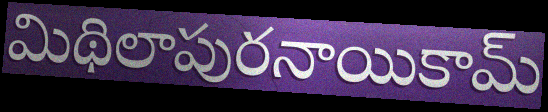
మిథిలాపురనాయికామ్